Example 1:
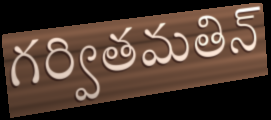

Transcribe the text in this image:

గర్వితమతిన్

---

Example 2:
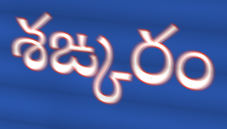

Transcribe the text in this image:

శఙ్కరం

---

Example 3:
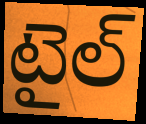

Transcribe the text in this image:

టైల్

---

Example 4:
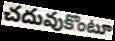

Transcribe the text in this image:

చదువుకొంటూ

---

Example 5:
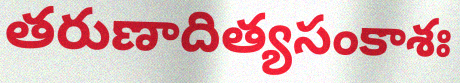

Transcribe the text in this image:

తరుణాదిత్యసంకాశః